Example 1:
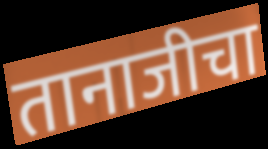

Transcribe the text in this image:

तानाजीचा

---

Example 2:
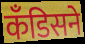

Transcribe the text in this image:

कँडिसने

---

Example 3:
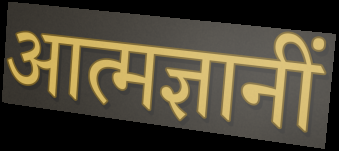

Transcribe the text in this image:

आत्मज्ञानीं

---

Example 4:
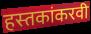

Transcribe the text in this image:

हस्तकांकरवी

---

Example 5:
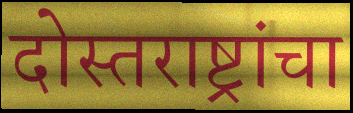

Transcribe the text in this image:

दोस्तराष्ट्रांचा